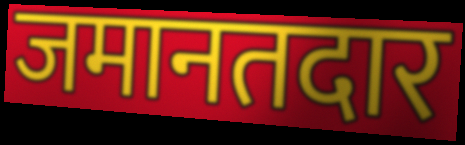
जमानतदार